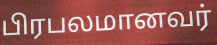
பிரபலமானவர்